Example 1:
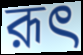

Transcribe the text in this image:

রূৎ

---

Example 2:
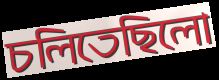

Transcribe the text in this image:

চলিতেছিলো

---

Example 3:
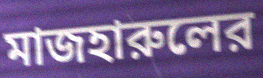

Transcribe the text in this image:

মাজহারুলের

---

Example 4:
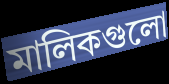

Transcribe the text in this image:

মালিকগুলো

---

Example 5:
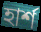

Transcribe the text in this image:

হার্শ